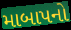
માબાપનો